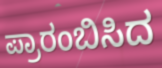
ಪ್ರಾರಂಬಿಸಿದ